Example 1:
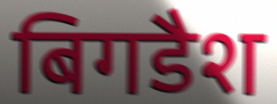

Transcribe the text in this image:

बिगडैश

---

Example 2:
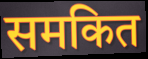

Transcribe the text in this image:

समकित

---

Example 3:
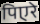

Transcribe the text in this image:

पिएरे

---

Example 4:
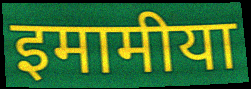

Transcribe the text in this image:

इमामीया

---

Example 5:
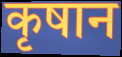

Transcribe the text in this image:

कृषान